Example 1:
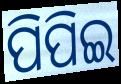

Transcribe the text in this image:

ପିପିଇ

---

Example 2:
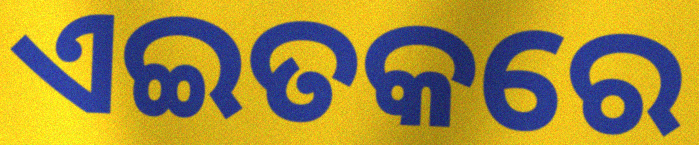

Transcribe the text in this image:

ଏଇତକରେ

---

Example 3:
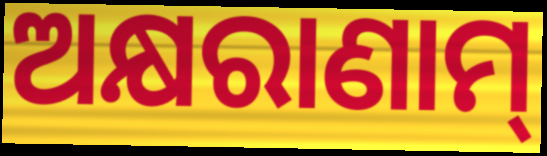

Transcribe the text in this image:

ଅକ୍ଷରାଣାମ୍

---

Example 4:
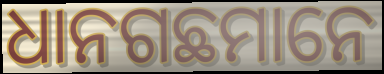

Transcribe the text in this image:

ଧାନଗଛମାନେ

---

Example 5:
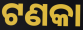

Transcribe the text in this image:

ଟଣକା